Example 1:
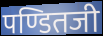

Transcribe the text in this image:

पण्डितजी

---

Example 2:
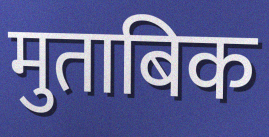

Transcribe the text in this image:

मुताबिक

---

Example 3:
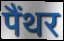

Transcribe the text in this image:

पैंथर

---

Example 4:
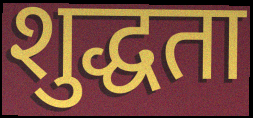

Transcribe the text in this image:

शुद्धता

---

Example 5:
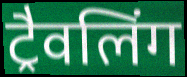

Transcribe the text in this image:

ट्रैवलिंग